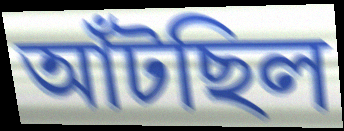
আঁটছিল